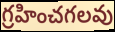
గ్రహించగలవు